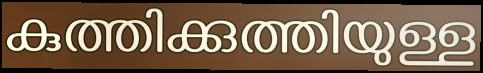
കുത്തിക്കുത്തിയുള്ള